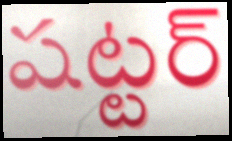
షట్టర్